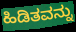
ಹಿಡಿತವನ್ನು